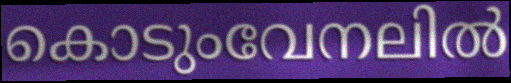
കൊടുംവേനലിൽ